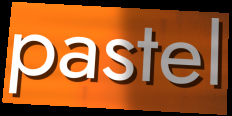
pastel